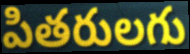
పితరులగు